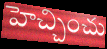
హెచ్చించు